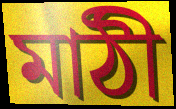
মাঠী